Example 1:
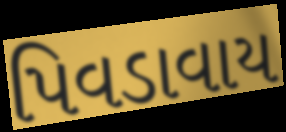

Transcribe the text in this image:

પિવડાવાય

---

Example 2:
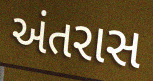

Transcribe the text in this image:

અંતરાસ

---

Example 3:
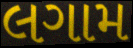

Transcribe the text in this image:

લગામ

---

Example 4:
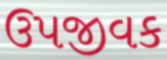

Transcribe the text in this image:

ઉપજીવક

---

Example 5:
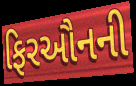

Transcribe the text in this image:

ફિરઔનની